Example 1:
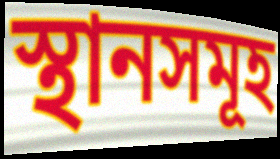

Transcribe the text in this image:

স্থানসমূহ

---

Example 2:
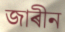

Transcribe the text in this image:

জাৰীন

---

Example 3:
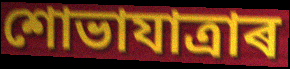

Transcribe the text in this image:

শোভাযাত্ৰাৰ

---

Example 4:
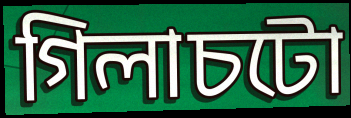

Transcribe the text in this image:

গিলাচটো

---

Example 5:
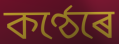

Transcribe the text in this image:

কণ্ঠেৰে